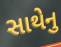
સાથેનુ